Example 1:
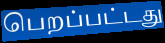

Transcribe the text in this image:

பெறப்பட்டது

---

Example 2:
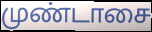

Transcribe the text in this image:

முண்டாசை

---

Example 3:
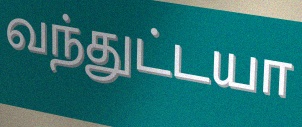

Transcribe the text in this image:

வந்துட்டயா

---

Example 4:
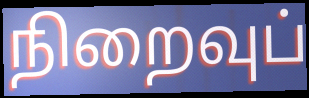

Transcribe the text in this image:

நிறைவுப்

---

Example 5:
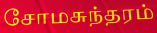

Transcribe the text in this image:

சோமசுந்தரம்